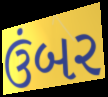
ઉંબર